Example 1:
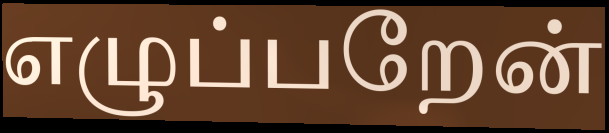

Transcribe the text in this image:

எழுப்பறேன்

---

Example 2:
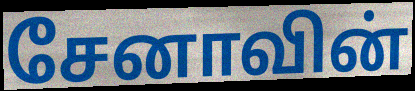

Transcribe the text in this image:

சேனாவின்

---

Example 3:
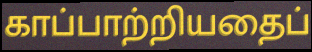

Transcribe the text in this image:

காப்பாற்றியதைப்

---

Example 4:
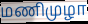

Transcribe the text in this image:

மணிமுழா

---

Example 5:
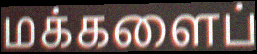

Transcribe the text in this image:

மக்களைப்